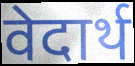
वेदार्थ